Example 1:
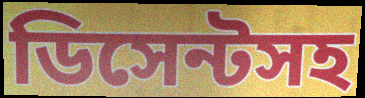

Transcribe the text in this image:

ডিসেন্টসহ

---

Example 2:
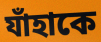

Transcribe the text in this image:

যাঁহাকে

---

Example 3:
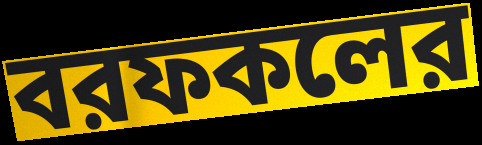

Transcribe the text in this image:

বরফকলের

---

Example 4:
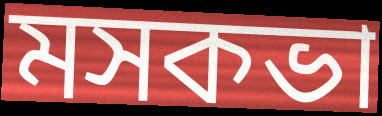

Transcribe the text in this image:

মসকভা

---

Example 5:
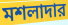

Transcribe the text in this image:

মশলাদার